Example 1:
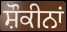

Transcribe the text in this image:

ਸ਼ੌਕੀਨਾਂ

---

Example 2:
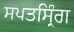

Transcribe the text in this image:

ਸਪਤਸ੍ਰਿੰਗ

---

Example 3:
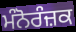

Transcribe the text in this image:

ਮੰਨੋਰੰਜ਼ਕ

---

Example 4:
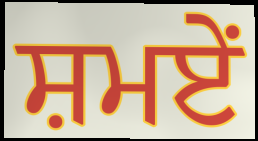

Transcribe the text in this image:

ਸ਼ਮਏਂ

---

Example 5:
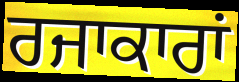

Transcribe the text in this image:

ਰਜਾਕਾਰਾਂ